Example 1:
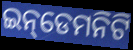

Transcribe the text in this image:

ଇନ୍‌ଡେମନିଟି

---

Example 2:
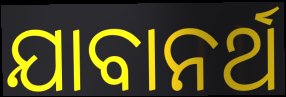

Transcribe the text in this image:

ଯାବାନର୍ଥ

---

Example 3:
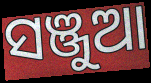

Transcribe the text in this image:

ସଞ୍ଜୁଆ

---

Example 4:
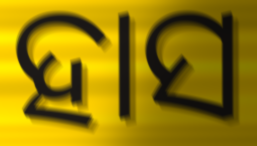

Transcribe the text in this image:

ହାସ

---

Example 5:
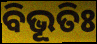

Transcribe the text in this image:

ବିଭୂତିଃ